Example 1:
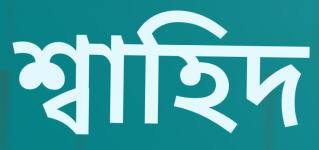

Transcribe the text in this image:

শ্বাহিদ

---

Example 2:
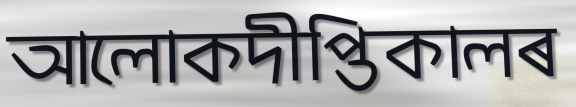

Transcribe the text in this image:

আলোকদীপ্তিকালৰ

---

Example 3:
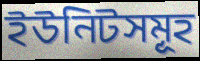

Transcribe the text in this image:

ইউনিটসমূহ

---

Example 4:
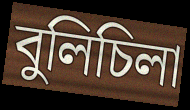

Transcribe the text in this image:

বুলিচিলা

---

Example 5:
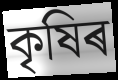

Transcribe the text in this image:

কৃষিৰ